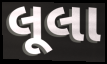
લૂલા